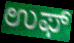
ಉಫ್